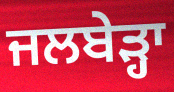
ਜਲਬੇੜ੍ਹਾ